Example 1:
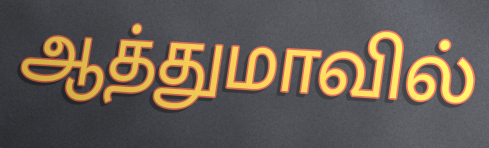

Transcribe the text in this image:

ஆத்துமாவில்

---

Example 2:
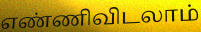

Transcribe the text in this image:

எண்ணிவிடலாம்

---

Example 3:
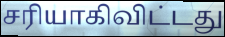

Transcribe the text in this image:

சரியாகிவிட்டது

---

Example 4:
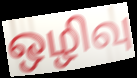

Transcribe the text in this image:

ஒழிவு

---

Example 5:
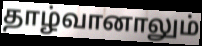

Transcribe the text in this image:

தாழ்வானாலும்